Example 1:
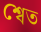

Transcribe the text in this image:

শ্বেত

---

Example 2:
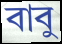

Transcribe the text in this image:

বাবু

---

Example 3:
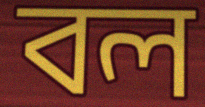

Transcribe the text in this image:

বল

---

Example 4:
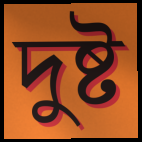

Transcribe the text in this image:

দুষ্ট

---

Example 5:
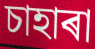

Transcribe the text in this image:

চাহাৰা